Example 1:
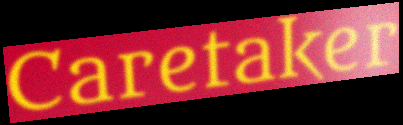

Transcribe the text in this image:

Caretaker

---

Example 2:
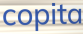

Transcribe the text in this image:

copita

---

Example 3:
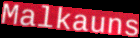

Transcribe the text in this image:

Malkauns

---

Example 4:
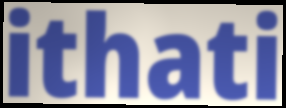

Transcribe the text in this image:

ithati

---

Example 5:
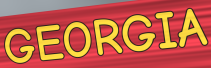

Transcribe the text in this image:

GEORGIA